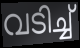
വടിച്ച്